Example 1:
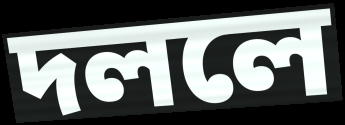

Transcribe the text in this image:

দললে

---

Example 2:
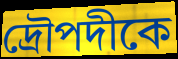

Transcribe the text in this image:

দ্রৌপদীকে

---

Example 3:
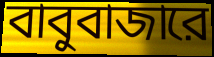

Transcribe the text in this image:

বাবুবাজারে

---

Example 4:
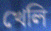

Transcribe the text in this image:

খেলি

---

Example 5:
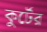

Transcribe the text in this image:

কুর্টের